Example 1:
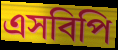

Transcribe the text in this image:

এসবিপি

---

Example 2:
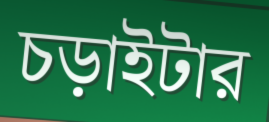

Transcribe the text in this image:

চড়াইটার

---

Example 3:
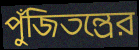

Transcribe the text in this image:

পুঁজিতন্ত্রের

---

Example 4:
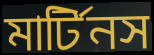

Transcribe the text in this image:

মার্টিনস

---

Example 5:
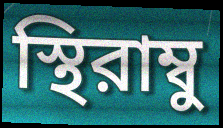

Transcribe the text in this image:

স্থিরাম্বু